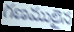
గణములైన